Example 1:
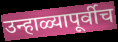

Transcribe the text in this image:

उन्हाळ्यापूर्वीच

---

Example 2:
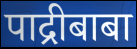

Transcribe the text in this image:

पाद्रीबाबा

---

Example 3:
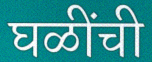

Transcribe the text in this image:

घळींची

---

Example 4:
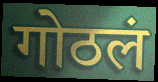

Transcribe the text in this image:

गोठलं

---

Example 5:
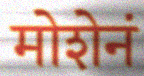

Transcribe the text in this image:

मोशेनं